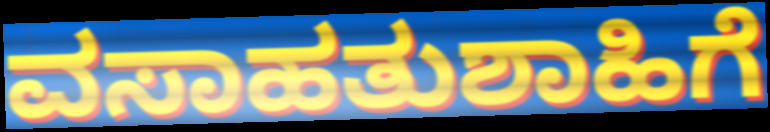
ವಸಾಹತುಶಾಹಿಗೆ